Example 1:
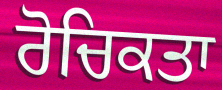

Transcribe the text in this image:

ਰੋਚਿਕਤਾ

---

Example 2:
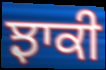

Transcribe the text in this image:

ਝਾਕੀ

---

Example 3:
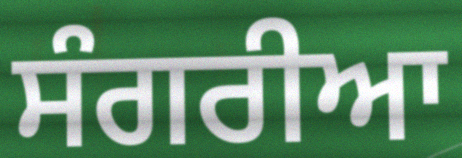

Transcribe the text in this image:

ਸੰਗਰੀਆ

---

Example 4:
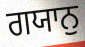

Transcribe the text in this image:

ਗਯਾਨੁ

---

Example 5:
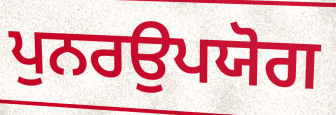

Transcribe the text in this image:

ਪੁਨਰਉਪਯੋਗ